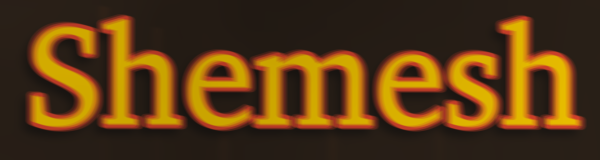
Shemesh